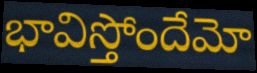
భావిస్తోందేమో